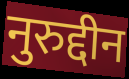
नुरुद्दीन